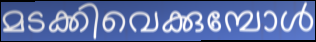
മടക്കിവെക്കുമ്പോൾ